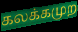
கலக்கமுற